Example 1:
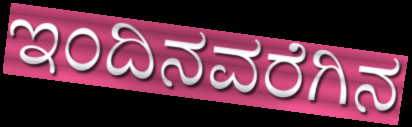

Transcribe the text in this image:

ಇಂದಿನವರೆಗಿನ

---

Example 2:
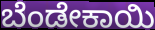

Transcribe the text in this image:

ಬೆಂಡೇಕಾಯಿ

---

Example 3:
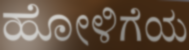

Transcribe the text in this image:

ಹೋಳಿಗೆಯ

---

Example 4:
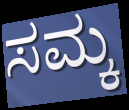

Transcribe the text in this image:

ಸಮ್ಕ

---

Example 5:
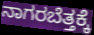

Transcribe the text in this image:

ನಾಗರಬೆತ್ತಕ್ಕೆ